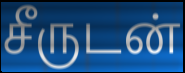
சீருடன்